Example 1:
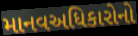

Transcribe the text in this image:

માનવઅધિકારોનો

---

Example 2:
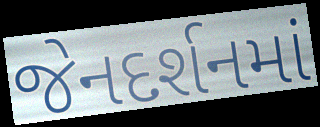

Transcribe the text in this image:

જેનદર્શનમાં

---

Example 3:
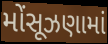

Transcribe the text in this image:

મોંસૂઝણામાં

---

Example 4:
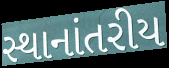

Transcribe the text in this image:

સ્થાનાંતરીય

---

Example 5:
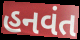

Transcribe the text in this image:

હનવંત